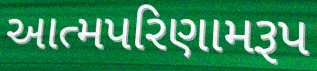
આત્મપરિણામરૂપ